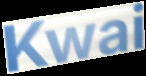
Kwai